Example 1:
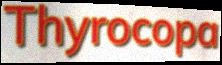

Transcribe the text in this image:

Thyrocopa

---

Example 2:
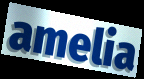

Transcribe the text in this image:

amelia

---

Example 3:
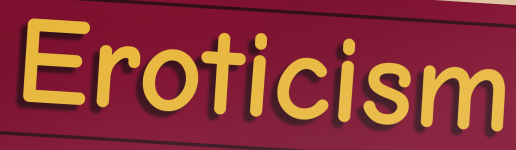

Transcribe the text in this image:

Eroticism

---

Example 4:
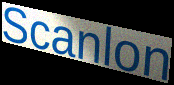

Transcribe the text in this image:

Scanlon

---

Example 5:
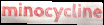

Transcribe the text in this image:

minocycline